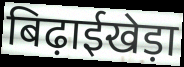
बिढ़ाईखेड़ा